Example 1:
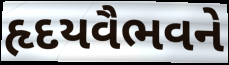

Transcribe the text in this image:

હૃદયવૈભવને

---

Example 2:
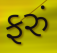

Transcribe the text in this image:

ફરું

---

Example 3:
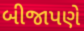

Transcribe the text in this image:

બીજાપણે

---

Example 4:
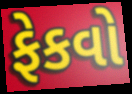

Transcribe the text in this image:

ફેકવો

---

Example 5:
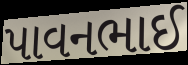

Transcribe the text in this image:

પાવનભાઈ